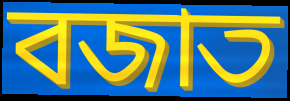
বজাত